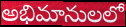
అభిమానులలో